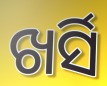
ଖର୍ସି